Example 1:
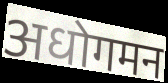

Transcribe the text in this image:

अधोगमन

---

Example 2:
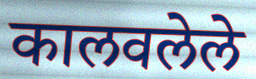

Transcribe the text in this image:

कालवलेले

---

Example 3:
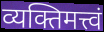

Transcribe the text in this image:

व्यक्तिमत्त्वं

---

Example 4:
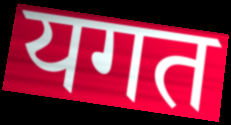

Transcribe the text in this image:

यगत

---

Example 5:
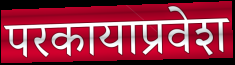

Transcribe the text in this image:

परकायाप्रवेश